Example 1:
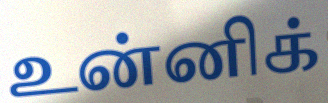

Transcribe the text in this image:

உன்னிக்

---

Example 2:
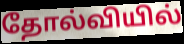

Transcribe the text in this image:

தோல்வியில்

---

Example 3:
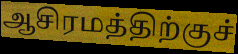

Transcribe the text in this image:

ஆசிரமத்திற்குச்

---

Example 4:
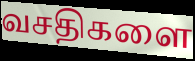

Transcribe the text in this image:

வசதிகளை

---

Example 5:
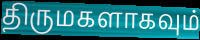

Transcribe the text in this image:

திருமகளாகவும்